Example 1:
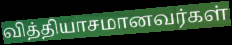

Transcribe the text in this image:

வித்தியாசமானவர்கள்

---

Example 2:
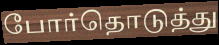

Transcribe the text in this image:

போர்தொடுத்து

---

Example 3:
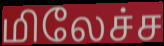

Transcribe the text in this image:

மிலேச்ச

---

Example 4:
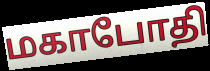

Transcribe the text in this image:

மகாபோதி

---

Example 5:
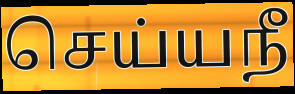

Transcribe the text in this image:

செய்யநீ